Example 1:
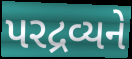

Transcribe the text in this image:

પરદ્રવ્યને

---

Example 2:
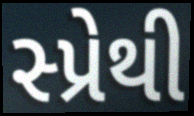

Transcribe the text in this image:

સ્પ્રેથી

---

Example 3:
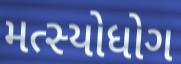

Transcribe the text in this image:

મત્સ્યોધોગ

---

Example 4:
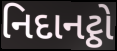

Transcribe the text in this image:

નિદાનટ્ઠો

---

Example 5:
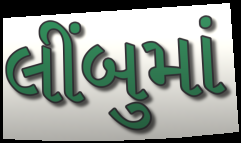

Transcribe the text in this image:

લીંબુમાં